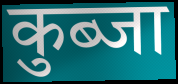
कुब्जा